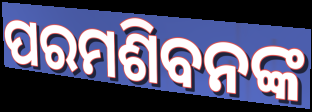
ପରମଶିବନଙ୍କ